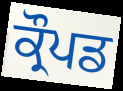
ਕ੍ਰੌਪਡ